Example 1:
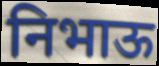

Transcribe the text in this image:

निभाऊ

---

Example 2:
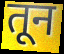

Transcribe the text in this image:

तून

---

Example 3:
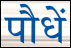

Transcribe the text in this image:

पौधें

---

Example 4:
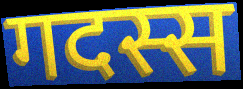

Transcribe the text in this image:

गदस्स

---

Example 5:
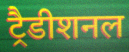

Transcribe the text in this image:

ट्रैडीशनल